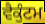
ਵੈਕੁੰਟਮ